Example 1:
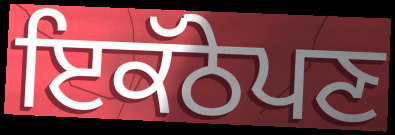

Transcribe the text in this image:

ਇਕੱਠੇਪਣ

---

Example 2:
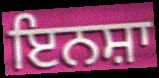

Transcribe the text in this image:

ਇਨਸ਼ਾ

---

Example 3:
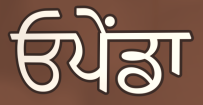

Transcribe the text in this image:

ਓਪੇਂਡਾ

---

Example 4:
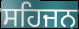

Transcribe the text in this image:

ਸਹਿਜਨ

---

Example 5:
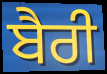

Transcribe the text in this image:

ਬੈਰੀ